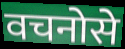
वचनोसे